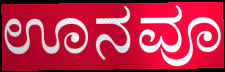
ಊನವೂ